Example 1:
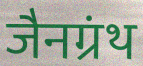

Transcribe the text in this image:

जैनग्रंथ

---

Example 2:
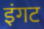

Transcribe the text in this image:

इंगट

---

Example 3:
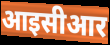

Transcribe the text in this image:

आइसीआर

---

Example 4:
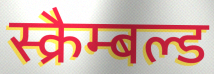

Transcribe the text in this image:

स्क्रैम्बल्ड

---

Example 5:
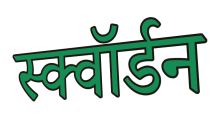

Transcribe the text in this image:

स्क्वॉर्डन